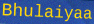
Bhulaiyaa